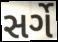
સર્ગે